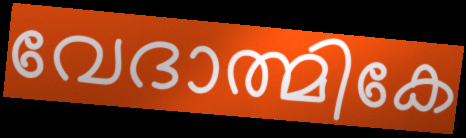
വേദാത്മികേ